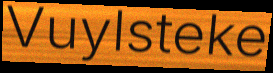
Vuylsteke